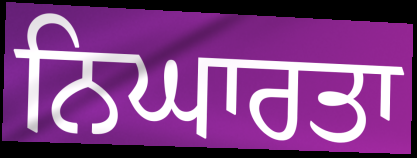
ਨਿਘਾਰਤਾ